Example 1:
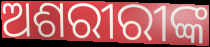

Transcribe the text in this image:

ଅଶରୀରୀଙ୍କ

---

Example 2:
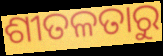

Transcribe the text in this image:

ଶୀତଳତାରୁ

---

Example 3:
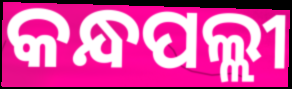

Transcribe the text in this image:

କନ୍ଧପଲ୍ଲୀ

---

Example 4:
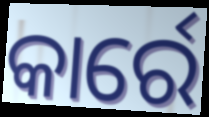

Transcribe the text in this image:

କାର୍ରେ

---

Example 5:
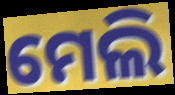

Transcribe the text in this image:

ମେଲି